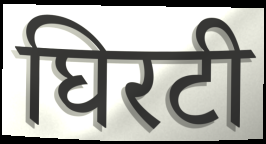
घिरटी